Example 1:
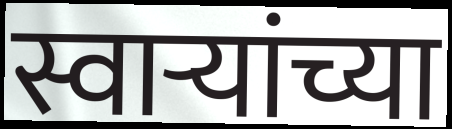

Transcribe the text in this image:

स्वाऱ्यांच्या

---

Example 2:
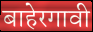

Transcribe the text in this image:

बाहेरगावी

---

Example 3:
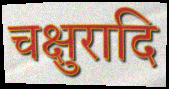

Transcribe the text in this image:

चक्षुरादि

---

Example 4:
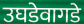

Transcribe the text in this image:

उघडेवागडे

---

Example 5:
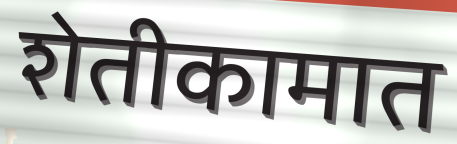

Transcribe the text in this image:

शेतीकामात